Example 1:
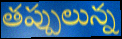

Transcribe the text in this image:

తప్పులున్న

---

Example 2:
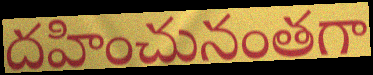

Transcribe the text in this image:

దహించునంతగా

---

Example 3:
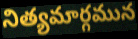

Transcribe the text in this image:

నిత్యమార్గమున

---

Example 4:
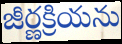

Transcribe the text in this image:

జీర్ణక్రియను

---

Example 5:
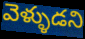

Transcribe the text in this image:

వెళ్ళుడని